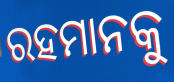
ରହମାନକୁ